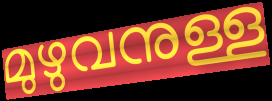
മുഴുവനുള്ള